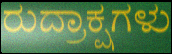
ರುದ್ರಾಕ್ಷಗಳು